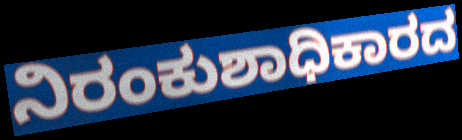
ನಿರಂಕುಶಾಧಿಕಾರದ